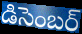
డిసెంబర్